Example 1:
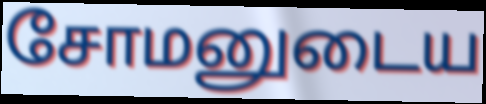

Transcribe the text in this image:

சோமனுடைய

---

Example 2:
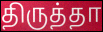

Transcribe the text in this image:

திருத்தா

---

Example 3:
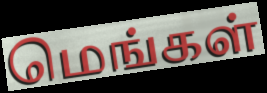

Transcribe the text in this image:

மெங்கள்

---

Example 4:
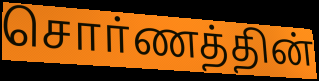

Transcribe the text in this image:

சொர்ணத்தின்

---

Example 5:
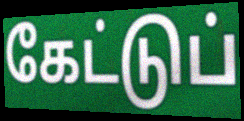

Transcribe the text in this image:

கேட்டுப்